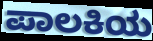
ಪಾಲಕಿಯ